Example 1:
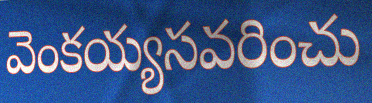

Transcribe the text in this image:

వెంకయ్యసవరించు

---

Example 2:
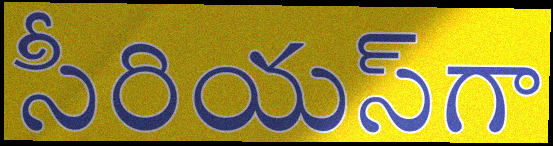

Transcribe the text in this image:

సీరియస్‌గా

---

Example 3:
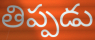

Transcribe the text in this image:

తిప్పడు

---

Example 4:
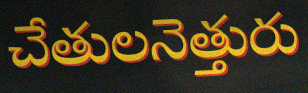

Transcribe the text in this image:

చేతులనెత్తురు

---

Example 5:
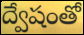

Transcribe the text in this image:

ద్వేషంతో